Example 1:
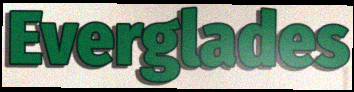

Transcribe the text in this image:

Everglades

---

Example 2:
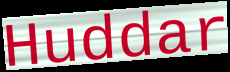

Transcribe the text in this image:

Huddar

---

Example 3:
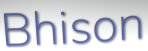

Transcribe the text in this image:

Bhison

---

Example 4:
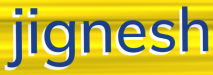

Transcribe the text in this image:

jignesh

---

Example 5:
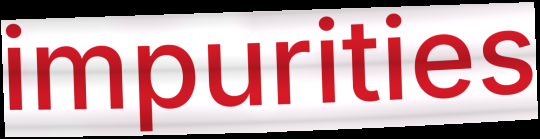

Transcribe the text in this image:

impurities